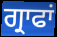
ਗ੍ਰਾਫਾਂ